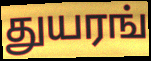
துயரங்